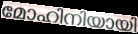
മോഹിനിയായി